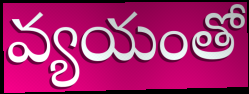
వ్యయంతో